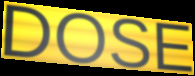
DOSE